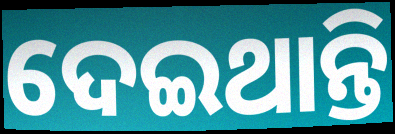
ଦେଇଥାନ୍ତି